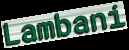
Lambani